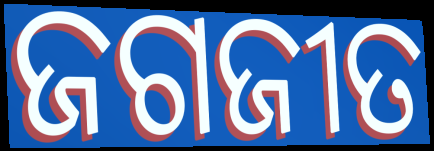
ଜଗଜୀତ